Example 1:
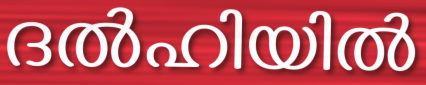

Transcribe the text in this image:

ദൽഹിയിൽ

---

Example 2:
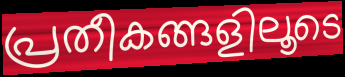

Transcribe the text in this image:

പ്രതീകങ്ങളിലൂടെ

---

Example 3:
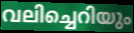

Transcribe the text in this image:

വലിച്ചെറിയും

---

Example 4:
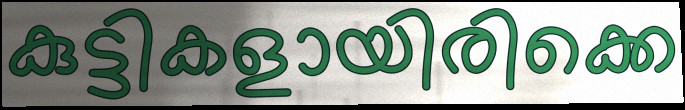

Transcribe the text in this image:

കുട്ടികളായിരിക്കെ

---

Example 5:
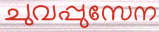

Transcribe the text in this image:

ചുവപ്പുസേന